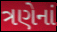
ત્રણેનાં